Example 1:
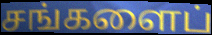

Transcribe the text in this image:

சங்களைப்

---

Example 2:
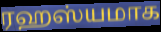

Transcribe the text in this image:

ரஹஸ்யமாக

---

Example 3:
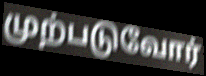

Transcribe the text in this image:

முற்படுவோர்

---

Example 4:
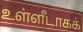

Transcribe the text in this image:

உள்ளீடாகக்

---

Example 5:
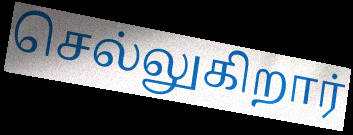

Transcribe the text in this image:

செல்லுகிறார்